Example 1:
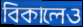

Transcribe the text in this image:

বিকালেও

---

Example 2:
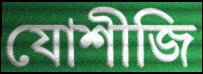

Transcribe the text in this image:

যোশীজি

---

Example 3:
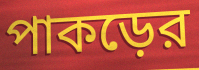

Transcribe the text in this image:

পাকড়ের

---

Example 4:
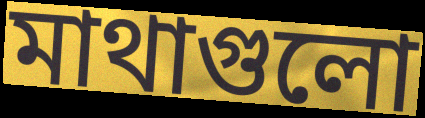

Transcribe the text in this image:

মাথাগুলো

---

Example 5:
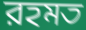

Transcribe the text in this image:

রহমত